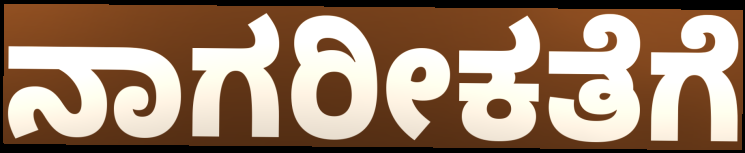
ನಾಗರೀಕತೆಗೆ